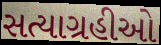
સત્યાગ્રહીઓ